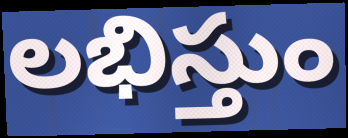
లభిస్తుం